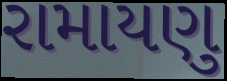
રામાયણુ